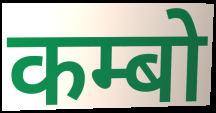
कम्बो